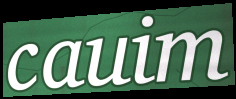
cauim